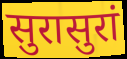
सुरासुरां